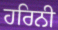
ਹਰਿਨੀ